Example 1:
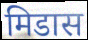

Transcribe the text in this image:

मिडास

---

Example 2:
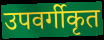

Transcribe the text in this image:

उपवर्गीकृत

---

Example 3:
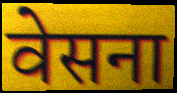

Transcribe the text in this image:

वेसना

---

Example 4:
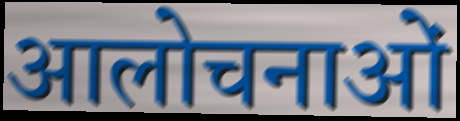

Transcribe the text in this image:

आलोचनाओं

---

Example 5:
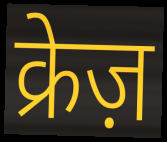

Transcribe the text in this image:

क्रेज़